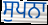
ਸੁਪਨਾ